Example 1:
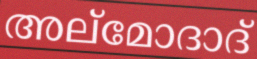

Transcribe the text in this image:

അല്മോദാദ്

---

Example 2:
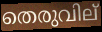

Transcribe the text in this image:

തെരുവില്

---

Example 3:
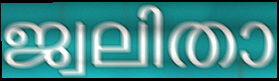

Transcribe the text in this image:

ജ്വലിതാ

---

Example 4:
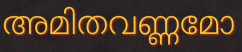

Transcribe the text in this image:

അമിതവണ്ണമോ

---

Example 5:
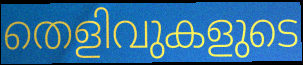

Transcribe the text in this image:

തെളിവുകളുടെ